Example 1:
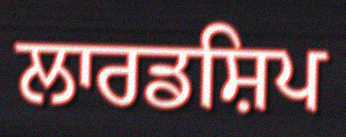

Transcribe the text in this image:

ਲਾਰਡਸ਼ਿਪ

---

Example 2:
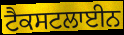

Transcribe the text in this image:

ਟੈਕਸਟਲਾਈਨ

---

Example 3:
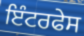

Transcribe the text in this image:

ਇੰਟਰਫੇਸ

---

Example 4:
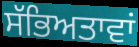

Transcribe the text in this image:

ਸੱਭਿਅਤਾਵਾਂ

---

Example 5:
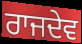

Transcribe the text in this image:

ਰਾਜਦੇਵ